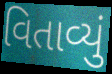
વિતાવ્યું